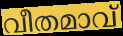
വീതമാവ്